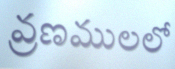
వ్రణములలో